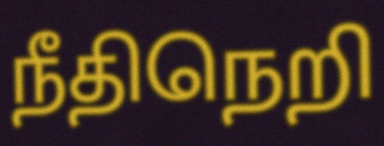
நீதிநெறி